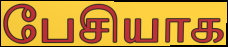
பேசியாக